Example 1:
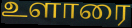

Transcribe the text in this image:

உளாரை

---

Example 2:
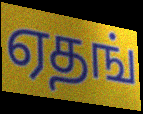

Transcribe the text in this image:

ஏதங்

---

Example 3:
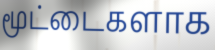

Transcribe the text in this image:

மூட்டைகளாக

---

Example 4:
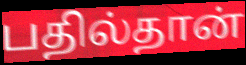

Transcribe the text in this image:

பதில்தான்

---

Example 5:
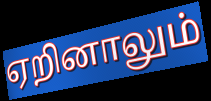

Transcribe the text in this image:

ஏறினாலும்